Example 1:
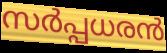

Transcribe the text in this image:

സർപ്പധരൻ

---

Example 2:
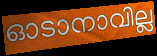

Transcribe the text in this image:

ഓടാനാവില്ല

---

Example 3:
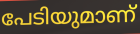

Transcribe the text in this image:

പേടിയുമാണ്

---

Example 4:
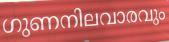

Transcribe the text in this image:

ഗുണനിലവാരവും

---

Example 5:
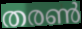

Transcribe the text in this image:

തരൺ